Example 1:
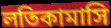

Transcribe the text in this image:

লতিকামাসি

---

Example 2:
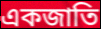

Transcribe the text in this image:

একজাতি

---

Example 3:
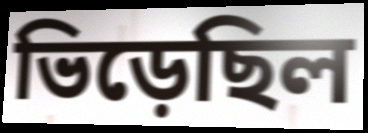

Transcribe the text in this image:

ভিড়েছিল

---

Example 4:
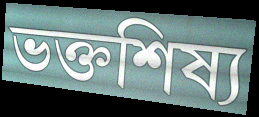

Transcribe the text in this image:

ভক্তশিষ্য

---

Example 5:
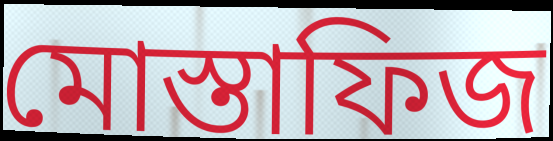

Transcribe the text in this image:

মোস্তাফিজ